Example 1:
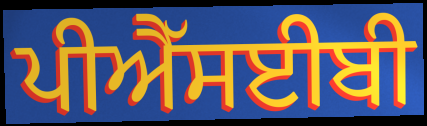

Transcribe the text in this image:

ਪੀਐੱਸਈਬੀ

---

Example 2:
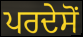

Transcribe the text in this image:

ਪਰਦੇਸੋਂ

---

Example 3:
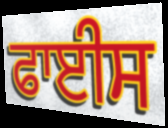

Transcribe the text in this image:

ਫਾਈਸ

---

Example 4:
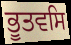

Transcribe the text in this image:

ਭੂਤਵਸਿ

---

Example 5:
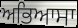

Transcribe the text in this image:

ਅਭਿਆਸਾ